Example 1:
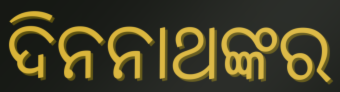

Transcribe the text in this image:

ଦିନନାଥଙ୍କର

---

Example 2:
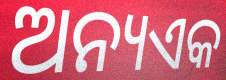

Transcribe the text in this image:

ଅନ୍ୟଏକ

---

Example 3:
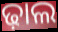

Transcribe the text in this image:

ଢ଼ାଲ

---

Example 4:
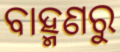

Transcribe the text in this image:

ବାହ୍ମଣରୁ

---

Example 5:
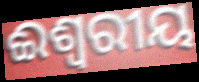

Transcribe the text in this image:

ଈଶ୍ବରୀୟ